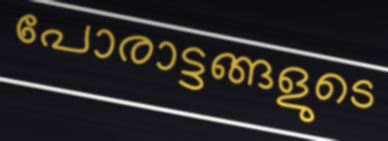
പോരാട്ടങ്ങളുടെ